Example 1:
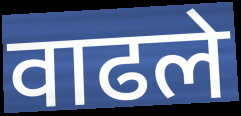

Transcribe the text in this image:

वाढले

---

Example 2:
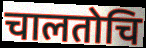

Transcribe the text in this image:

चालतोचि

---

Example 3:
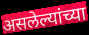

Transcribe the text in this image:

असलेल्यांच्या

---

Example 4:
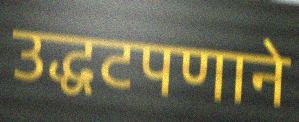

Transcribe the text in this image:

उद्धटपणाने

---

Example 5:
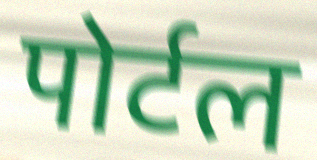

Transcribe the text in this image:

पोर्टल